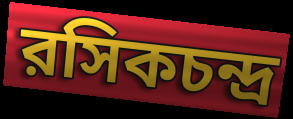
রসিকচন্দ্র